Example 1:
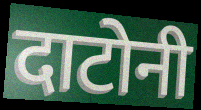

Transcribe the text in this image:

दाटोनी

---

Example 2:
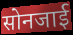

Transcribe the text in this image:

सोनजाई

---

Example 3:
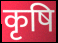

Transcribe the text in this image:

कृषि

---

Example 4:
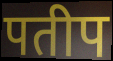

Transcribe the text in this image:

पतीप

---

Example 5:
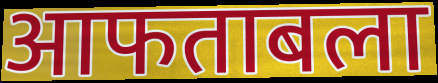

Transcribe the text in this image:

आफताबला